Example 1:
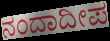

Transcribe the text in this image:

ನಂದಾದೀಪ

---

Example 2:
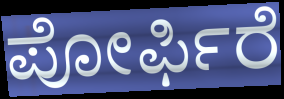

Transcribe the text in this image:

ಪೋರ್ಫಿರೆ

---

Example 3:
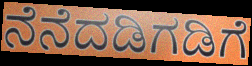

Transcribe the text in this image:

ನೆನೆದಡಿಗಡಿಗೆ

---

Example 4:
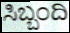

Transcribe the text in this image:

ಸಿಬ್ಬಂದಿ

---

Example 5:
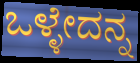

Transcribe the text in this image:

ಒಳ್ಳೇದನ್ನ